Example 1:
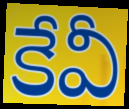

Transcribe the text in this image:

కేవీ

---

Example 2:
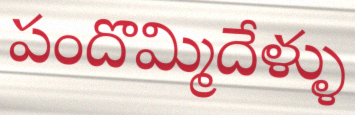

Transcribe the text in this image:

పందొమ్మిదేళ్ళు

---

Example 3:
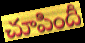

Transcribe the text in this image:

చూపిందీ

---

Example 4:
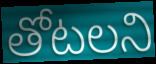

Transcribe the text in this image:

తోటలని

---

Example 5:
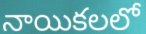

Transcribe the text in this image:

నాయికలలో